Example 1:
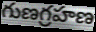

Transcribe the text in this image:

గుణగ్రహణ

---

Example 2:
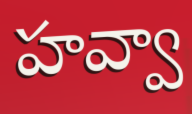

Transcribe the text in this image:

హవ్వా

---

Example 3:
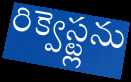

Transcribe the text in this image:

రిక్వెస్ట్లను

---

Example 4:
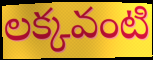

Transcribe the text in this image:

లక్కవంటి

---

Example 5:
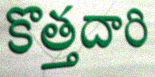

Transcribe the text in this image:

కొత్తదారి